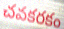
చవకరకం